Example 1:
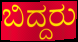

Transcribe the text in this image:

ಬಿದ್ದರು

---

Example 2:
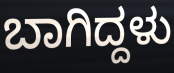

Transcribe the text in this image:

ಬಾಗಿದ್ದಳು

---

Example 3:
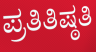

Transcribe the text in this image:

ಪ್ರತಿತಿಷ್ಠತಿ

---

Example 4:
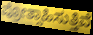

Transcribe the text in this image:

ಪ್ರೋತ್ಸಾಹಿಸುತ್ತಿವೆ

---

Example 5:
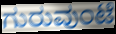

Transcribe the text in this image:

ಗುರುವುಂಟೆ